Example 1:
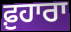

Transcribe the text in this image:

ਫ਼ੁਹਾਰਾ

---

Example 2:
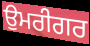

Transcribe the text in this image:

ਉਮਰੀਗਰ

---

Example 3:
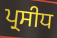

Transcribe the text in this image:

ਪ੍ਰਸੀਧ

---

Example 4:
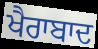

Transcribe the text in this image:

ਖੈਰਾਬਾਦ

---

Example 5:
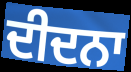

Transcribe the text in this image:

ਦੀਦਨਾ